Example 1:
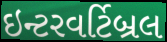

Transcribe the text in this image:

ઇન્ટરવર્ટિબ્રલ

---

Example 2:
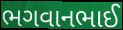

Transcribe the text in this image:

ભગવાનભાઈ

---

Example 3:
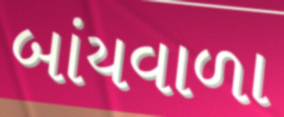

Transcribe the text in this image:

બાંયવાળા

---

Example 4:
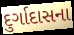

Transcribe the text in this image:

દુર્ગાદાસના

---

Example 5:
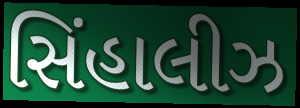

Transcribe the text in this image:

સિંહાલીઝ